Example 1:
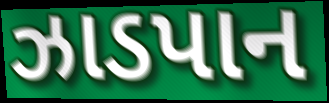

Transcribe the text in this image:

ઝાડપાન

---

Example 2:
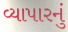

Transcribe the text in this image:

વ્યાપારનું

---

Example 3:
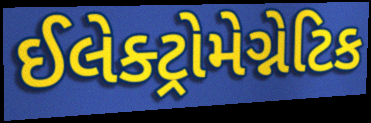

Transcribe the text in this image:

ઈલેક્ટ્રોમેગ્નેટિક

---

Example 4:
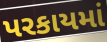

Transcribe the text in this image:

પરકાયમાં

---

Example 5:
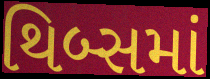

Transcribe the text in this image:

થિબ્સમાં